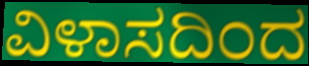
ವಿಳಾಸದಿಂದ